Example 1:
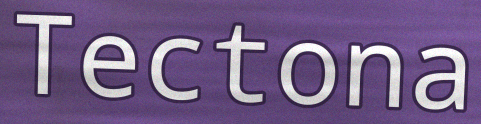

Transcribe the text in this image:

Tectona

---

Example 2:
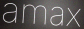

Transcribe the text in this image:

amax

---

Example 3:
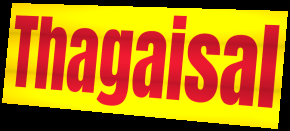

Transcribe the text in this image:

Thagaisal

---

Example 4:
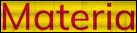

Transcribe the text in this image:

Materia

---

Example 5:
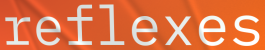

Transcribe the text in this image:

reflexes